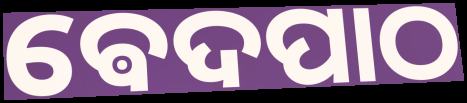
ଵେଦପାଠ